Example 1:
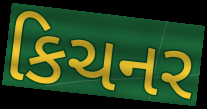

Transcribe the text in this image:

કિચનર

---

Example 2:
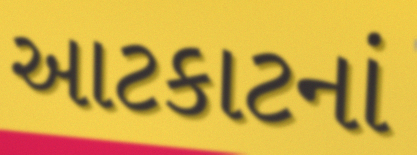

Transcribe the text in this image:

આટકાટનાં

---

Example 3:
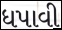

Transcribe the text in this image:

ધપાવી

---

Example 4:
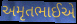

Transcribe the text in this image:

અમૃતભાઈએ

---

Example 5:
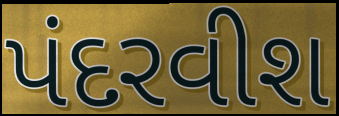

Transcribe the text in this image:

પંદરવીશ